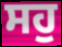
ਸਹੁ